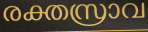
രക്തസ്രാവ